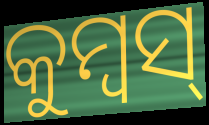
କୁମ୍ବସ୍